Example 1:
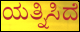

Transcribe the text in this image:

ಯತ್ನಿಸಿದೆ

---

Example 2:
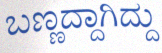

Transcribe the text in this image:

ಬಣ್ಣದ್ದಾಗಿದ್ದು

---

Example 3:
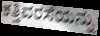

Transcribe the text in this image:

ಕತ್ತಿವರಸೆಯನ್ನು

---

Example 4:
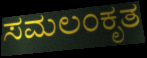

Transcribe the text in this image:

ಸಮಲಂಕೃತ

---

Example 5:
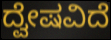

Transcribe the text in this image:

ದ್ವೇಷವಿದೆ